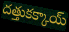
దత్తుకక్కాయ్